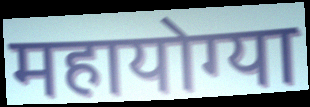
महायोग्या